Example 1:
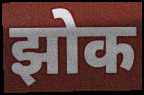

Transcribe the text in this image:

झोक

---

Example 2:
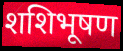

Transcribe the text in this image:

शशिभूषण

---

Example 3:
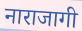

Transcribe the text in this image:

नाराजागी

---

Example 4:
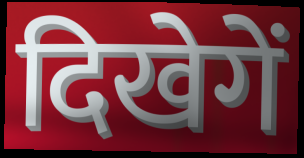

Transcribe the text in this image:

दिखेगें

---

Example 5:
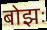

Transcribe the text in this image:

बोझः